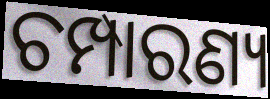
ଚମ୍ପାରଣ୍ୟ